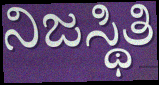
ನಿಜಸ್ಥಿತಿ